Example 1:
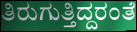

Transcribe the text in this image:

ತಿರುಗುತ್ತಿದ್ದರಂತೆ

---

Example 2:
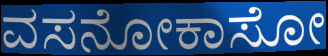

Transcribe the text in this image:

ವಸನೋಕಾಸೋ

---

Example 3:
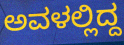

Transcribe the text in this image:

ಅವಳಲ್ಲಿದ್ದ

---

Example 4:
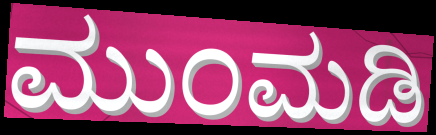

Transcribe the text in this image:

ಮುಂಮಡಿ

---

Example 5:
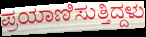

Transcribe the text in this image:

ಪ್ರಯಾಣಿಸುತ್ತಿದ್ದಳು